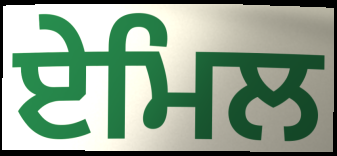
ਏਮਿਲ